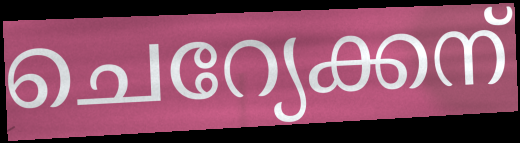
ചെറ്യേക്കന്